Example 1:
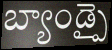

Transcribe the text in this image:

బ్యాండ్పై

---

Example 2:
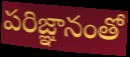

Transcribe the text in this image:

పరిజ్ఞానంతో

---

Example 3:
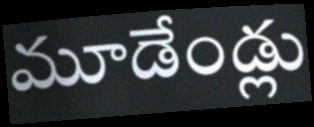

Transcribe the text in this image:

మూడేండ్లు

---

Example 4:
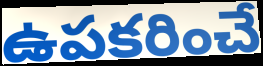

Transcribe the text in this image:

ఉపకరించే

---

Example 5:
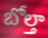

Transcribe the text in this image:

బోల్తా